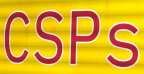
CSPs